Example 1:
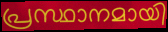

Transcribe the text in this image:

പ്രസ്ഥാനമായി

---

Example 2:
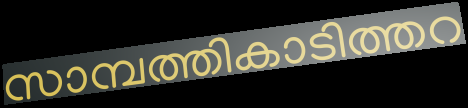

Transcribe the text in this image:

സാമ്പത്തികാടിത്തറ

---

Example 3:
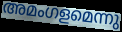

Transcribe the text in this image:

അമംഗളമെന്നു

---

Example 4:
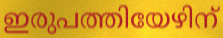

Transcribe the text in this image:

ഇരുപത്തിയേഴിന്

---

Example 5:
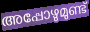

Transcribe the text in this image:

അപ്പോഴുമുണ്ട്